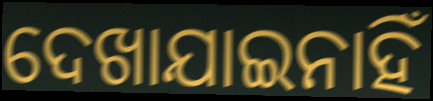
ଦେଖାଯାଇନାହିଁ